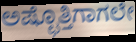
ಅಷ್ಟೊತ್ತಿಗಾಗಲೇ